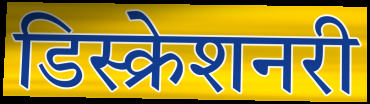
डिस्क्रेशनरी